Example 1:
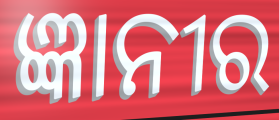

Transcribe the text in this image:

ଜ୍ଞାନୀର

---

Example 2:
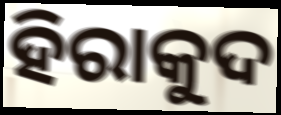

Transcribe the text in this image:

ହିରାକୁଦ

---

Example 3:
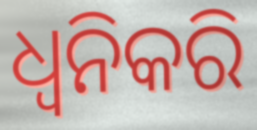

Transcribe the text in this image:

ଧ୍ୱନିକରି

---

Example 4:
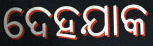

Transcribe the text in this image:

ଦେହଯାକ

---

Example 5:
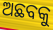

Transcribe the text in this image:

ଅଛବକୁ